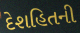
દેશહિતની